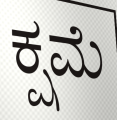
ಕ್ಷಮೆ